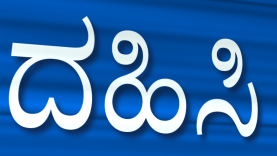
ದಹಿಸಿ